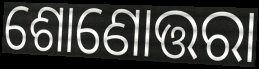
ଶୋଣୋତ୍ତରା